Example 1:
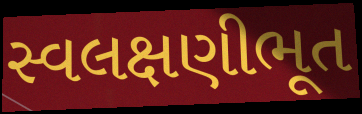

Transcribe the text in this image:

સ્વલક્ષણીભૂત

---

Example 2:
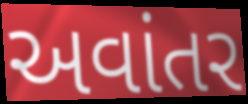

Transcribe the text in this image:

અવાંતર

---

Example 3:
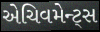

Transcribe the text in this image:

એચિવમેન્ટ્સ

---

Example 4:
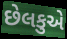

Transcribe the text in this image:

છેલકુએ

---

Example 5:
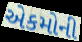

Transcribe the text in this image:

એકમોની